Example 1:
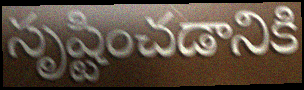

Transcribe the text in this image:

సృష్టించడానికి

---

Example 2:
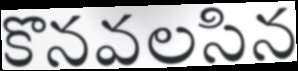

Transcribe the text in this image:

కొనవలసిన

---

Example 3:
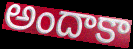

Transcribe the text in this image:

అందాకా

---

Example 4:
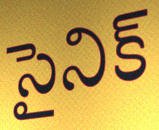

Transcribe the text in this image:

సైనిక్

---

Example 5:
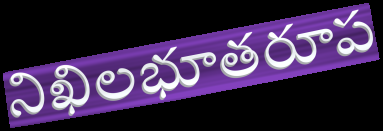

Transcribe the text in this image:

నిఖిలభూతరూప